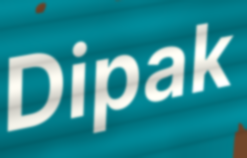
Dipak